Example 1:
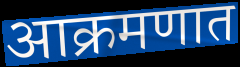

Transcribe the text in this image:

आक्रमणात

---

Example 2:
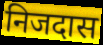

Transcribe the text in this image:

निजदास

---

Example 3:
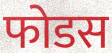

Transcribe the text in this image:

फोडस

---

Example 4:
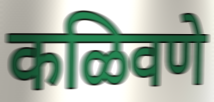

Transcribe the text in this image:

कळिवणे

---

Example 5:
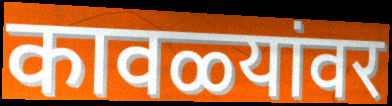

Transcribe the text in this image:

कावळ्यांवर